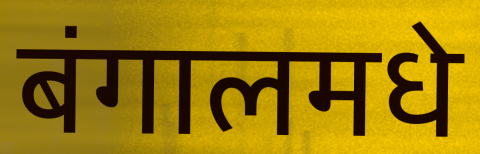
बंगालमधे